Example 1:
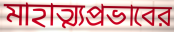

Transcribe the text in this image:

মাহাত্ম্যপ্রভাবের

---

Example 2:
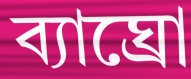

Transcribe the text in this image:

ব্যাঘ্রো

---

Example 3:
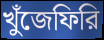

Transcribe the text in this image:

খুঁজেফিরি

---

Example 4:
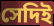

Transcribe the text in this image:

সেদিই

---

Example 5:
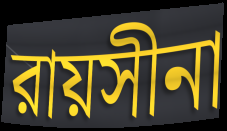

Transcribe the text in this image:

রায়সীনা